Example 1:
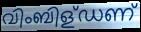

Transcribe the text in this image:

വിംബിള്ഡണ്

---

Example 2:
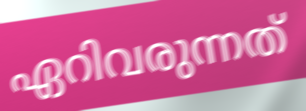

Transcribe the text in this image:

ഏറിവരുന്നത്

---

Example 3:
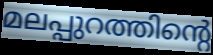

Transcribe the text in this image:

മലപ്പുറത്തിന്റെ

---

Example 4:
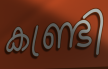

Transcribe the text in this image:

കണ്ട്രി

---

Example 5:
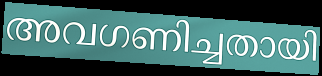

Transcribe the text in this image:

അവഗണിച്ചതായി